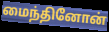
மைந்தினோன்